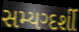
સમ્યગ્દર્શી